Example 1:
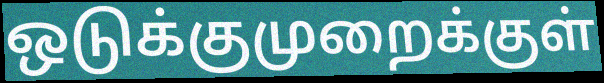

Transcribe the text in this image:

ஒடுக்குமுறைக்குள்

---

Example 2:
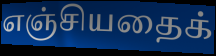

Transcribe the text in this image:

எஞ்சியதைக்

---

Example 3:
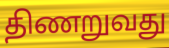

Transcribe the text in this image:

திணறுவது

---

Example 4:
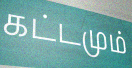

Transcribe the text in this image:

கட்டமும்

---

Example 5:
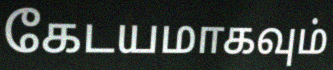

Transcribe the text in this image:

கேடயமாகவும்